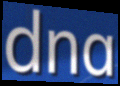
dna